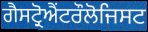
ਗੈਸਟ੍ਰੋਐਂਟਰੌਲੋਜਿਸਟ